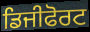
ਡਿਜੀਫੋਰਟ